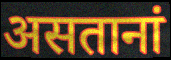
असतानां